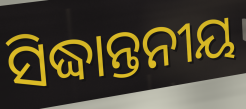
ସିଦ୍ଧାନ୍ତନୀୟ